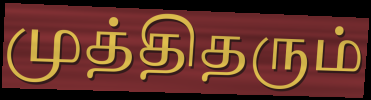
முத்திதரும்